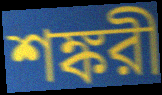
শঙ্করী